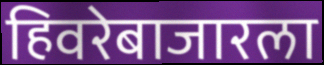
हिवरेबाजारला